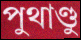
পুথাণ্ডু